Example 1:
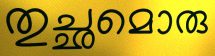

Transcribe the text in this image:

തുച്ഛമൊരു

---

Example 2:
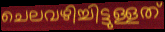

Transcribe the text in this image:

ചെലവഴിച്ചിട്ടുള്ളത്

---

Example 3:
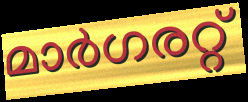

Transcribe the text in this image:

മാർഗരറ്റ്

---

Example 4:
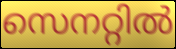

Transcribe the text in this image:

സെനറ്റിൽ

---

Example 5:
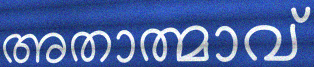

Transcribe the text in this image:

അതാത്മാവ്